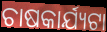
ଚାଷକାର୍ଯ୍ୟଟା